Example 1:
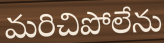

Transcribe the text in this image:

మరిచిపోలేను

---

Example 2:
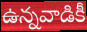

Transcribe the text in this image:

ఉన్నవాడికీ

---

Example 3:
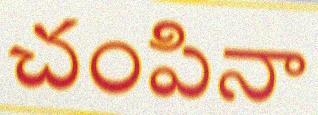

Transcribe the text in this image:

చంపినా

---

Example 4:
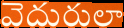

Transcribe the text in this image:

వెదురులా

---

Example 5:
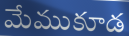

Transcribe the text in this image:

మేముకూడ